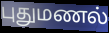
புதுமணல்